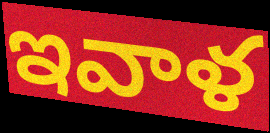
ఇవాళ